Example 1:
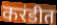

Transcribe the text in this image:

करंडीत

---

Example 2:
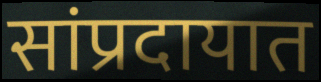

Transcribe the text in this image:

सांप्रदायात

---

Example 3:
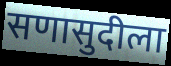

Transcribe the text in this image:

सणासुदीला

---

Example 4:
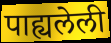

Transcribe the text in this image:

पाह्यलेली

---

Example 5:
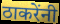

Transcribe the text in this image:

ठाकरेंनी